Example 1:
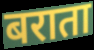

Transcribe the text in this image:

बराता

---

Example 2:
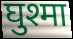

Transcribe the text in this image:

घुश्मा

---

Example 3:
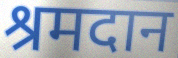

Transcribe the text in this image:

श्रमदान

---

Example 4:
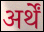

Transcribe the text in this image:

अर्थें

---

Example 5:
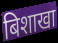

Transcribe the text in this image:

बिशाखा